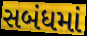
સબંધમાં